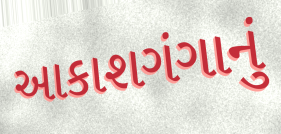
આકાશગંગાનું